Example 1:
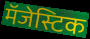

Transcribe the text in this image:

मॅजेस्टिक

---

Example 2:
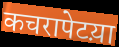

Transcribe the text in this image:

कचरापेटय़ा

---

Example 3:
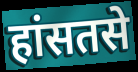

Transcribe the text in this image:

हांसतसे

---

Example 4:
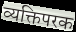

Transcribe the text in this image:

व्यक्तिपरक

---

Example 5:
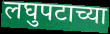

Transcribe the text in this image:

लघुपटाच्या